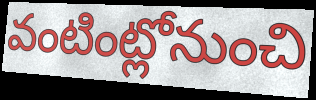
వంటింట్లోనుంచి